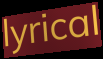
lyrical